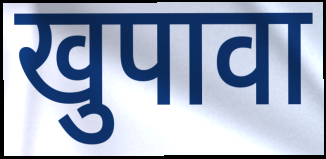
खुपावा